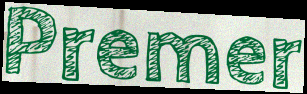
Premer